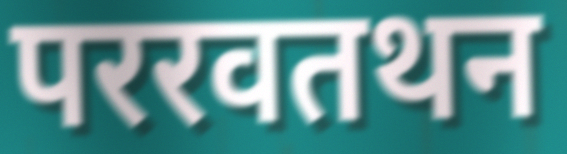
पररवतथन